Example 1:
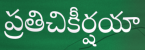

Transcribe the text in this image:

ప్రతిచికీర్షయా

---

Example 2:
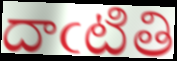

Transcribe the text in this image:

దాఁటితి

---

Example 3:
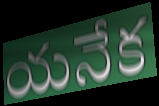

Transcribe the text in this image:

యనేక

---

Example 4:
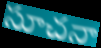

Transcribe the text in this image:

సూచనా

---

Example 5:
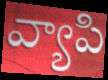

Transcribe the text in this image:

వ్యాపి